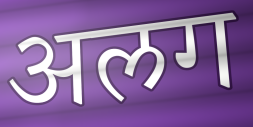
अलग